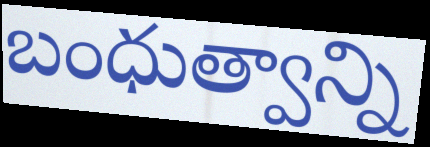
బంధుత్వాన్ని